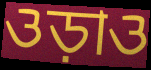
ওড়াও